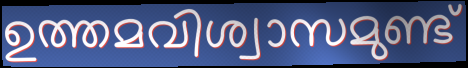
ഉത്തമവിശ്വാസമുണ്ട്